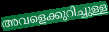
അവളെക്കുറിച്ചുള്ള